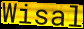
Wisal